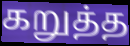
கறுத்த